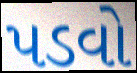
પડવો